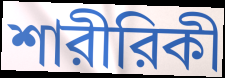
শারীরিকী